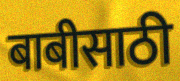
बाबीसाठी